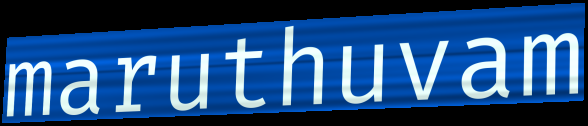
maruthuvam